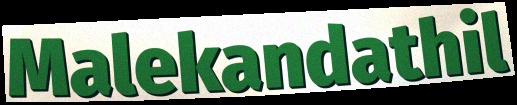
Malekandathil